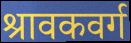
श्रावकवर्ग